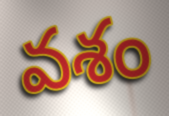
వశం